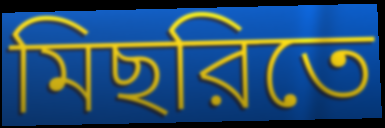
মিছরিতে